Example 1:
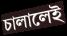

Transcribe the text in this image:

চালালেই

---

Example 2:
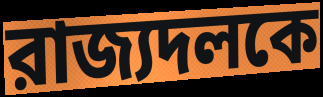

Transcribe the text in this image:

রাজ্যদলকে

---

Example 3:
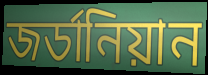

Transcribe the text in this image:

জর্ডানিয়ান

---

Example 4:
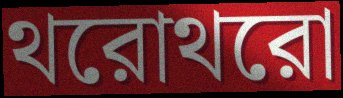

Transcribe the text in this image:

থরোথরো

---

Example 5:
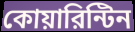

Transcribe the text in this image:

কোয়ারিন্টিন